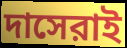
দাসেরাই